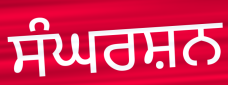
ਸੰਘਰਸ਼ਨ